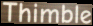
Thimble